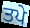
ਤਪੇ